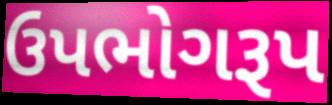
ઉપભોગરૂપ